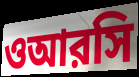
ওআরসি